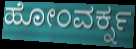
ಹೋಂವರ್ಕ್ನ